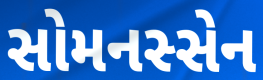
સોમનસ્સેન